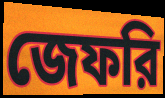
জেফরি